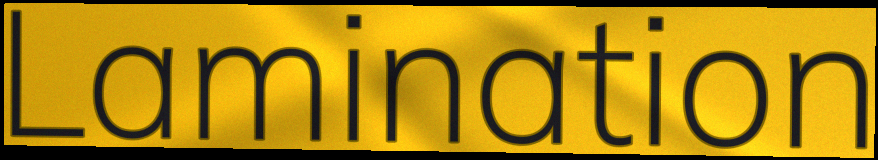
Lamination